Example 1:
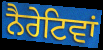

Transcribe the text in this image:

ਨੈਰੇਟਿਵਾਂ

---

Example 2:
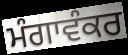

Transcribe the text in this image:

ਮੰਗਾਵੰਕਰ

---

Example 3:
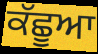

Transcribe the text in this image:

ਕੱਛੂਆ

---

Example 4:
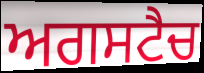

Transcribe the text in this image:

ਅਗਸਟੈਚ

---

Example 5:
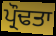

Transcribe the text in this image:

ਪ੍ਰੌਢਤਾ